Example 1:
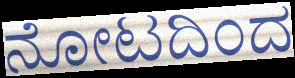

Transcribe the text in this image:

ನೋಟದಿಂದ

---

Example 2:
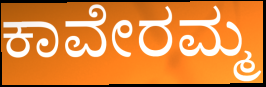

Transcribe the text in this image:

ಕಾವೇರಮ್ಮ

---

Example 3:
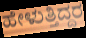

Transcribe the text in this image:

ಹೇಳುತ್ತಿದ್ದರ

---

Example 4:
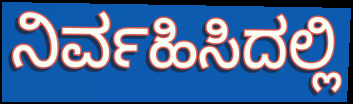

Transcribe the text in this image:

ನಿರ್ವಹಿಸಿದಲ್ಲಿ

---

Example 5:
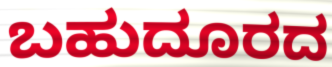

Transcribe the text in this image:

ಬಹುದೂರದ